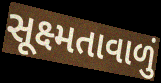
સૂક્ષ્મતાવાળું